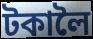
টকালৈ